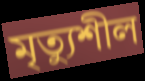
মৃত্যুশীল